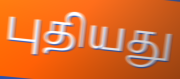
புதியது